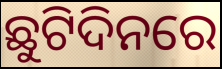
ଛୁଟିଦିନରେ